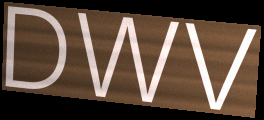
DWV